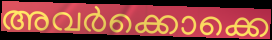
അവർക്കൊക്കെ